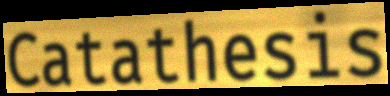
Catathesis